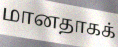
மானதாகக்